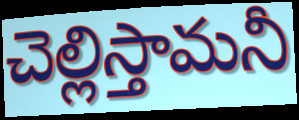
చెల్లిస్తామనీ